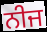
ਨੀਜ